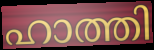
ഹാത്തി